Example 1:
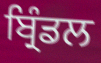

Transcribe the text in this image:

ਬ੍ਰਿੰਡਲ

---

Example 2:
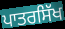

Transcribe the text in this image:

ਪਾਤਰਸਿੱਖ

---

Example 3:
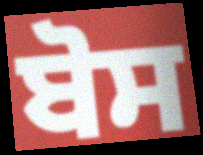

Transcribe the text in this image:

ਬੋਸ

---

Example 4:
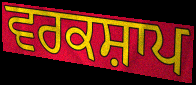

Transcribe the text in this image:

ਵਰਕਸ਼ਾਪ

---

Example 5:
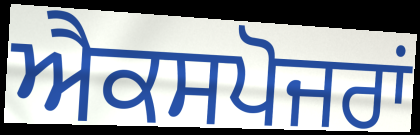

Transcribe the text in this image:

ਐਕਸਪੋਜਰਾਂ